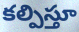
కల్పిస్తూ